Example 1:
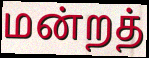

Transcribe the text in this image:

மன்றத்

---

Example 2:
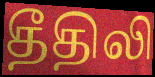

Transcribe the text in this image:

தீதிலி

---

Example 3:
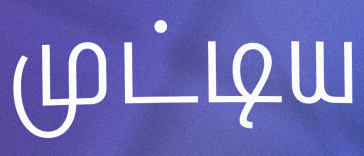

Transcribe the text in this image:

முட்டிய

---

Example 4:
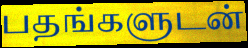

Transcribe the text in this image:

பதங்களுடன்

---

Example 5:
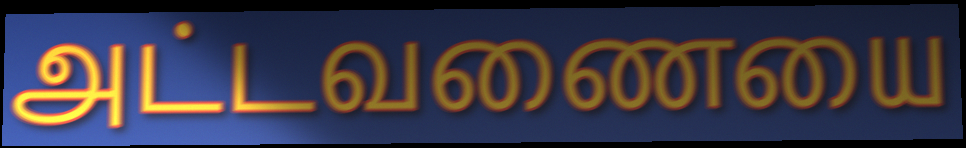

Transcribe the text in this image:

அட்டவணையை